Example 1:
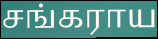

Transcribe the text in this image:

சங்கராய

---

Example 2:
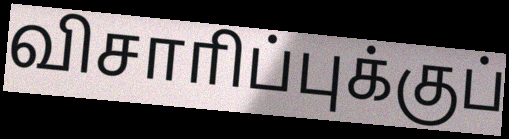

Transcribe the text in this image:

விசாரிப்புக்குப்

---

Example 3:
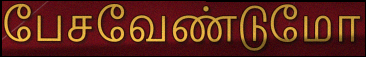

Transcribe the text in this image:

பேசவேண்டுமோ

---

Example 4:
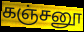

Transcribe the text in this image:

கஞ்சனூ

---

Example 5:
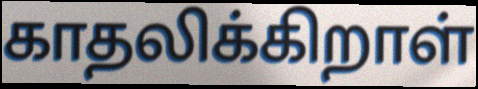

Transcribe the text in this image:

காதலிக்கிறாள்